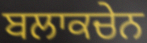
ਬਲਾਕਚੇਨ